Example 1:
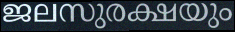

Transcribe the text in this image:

ജലസുരക്ഷയും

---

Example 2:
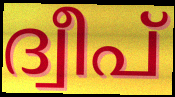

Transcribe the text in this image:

ദ്വീപ്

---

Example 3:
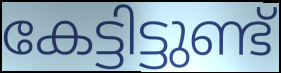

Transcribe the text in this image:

കേട്ടിട്ടുണ്ട്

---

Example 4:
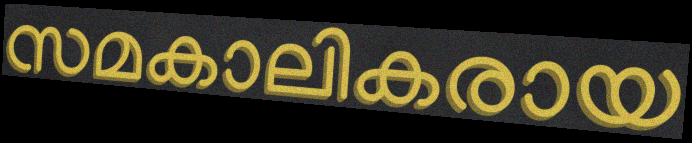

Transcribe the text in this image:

സമകാലികരായ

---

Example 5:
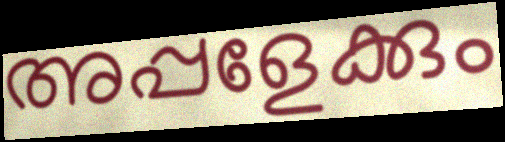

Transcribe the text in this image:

അപ്പളേക്കും